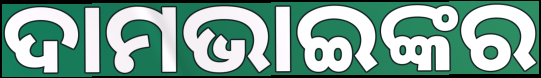
ଦାମଭାଇଙ୍କର